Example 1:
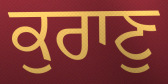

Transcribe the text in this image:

ਕੁਰਾਣੁ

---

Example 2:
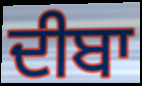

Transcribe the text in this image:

ਦੀਬਾ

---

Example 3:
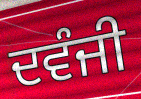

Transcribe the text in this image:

ਦਵੰਜੀ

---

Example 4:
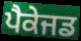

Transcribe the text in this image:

ਪੈਕੇਜਡ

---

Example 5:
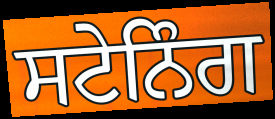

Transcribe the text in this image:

ਸਟੇਨਿੰਗ